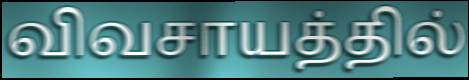
விவசாயத்தில்